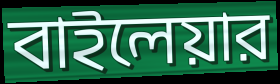
বাইলেয়ার